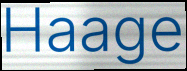
Haage